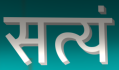
सत्यं